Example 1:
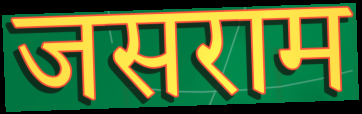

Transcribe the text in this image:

जसराम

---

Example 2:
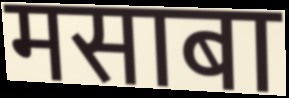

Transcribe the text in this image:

मसाबा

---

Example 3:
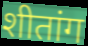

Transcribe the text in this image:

शीतांग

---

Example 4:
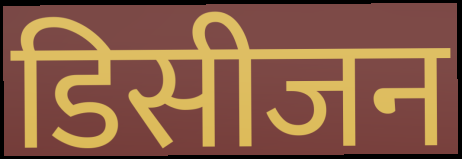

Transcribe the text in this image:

डिसीजन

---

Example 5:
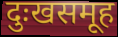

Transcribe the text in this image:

दुःखसमूह